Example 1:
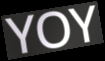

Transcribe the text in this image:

YOY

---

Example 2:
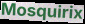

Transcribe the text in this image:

Mosquirix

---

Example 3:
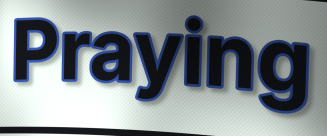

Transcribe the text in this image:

Praying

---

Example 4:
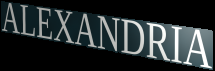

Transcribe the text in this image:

ALEXANDRIA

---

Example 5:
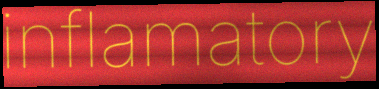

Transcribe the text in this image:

inflamatory